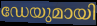
ഡേയുമായി